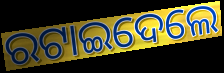
ରଟାଇଦେଲେ